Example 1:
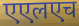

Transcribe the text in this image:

एएलएच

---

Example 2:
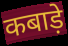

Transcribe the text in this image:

कबाड़े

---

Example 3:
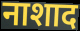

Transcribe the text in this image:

नाशाद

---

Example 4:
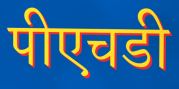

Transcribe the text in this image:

पीएचडी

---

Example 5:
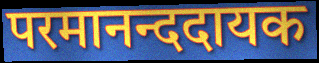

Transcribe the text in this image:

परमानन्ददायक